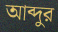
আব্দুর